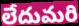
లేదుమరి